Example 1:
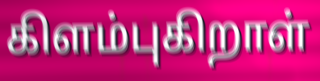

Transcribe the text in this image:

கிளம்புகிறாள்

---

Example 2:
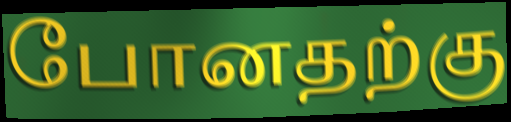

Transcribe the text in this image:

போனதற்கு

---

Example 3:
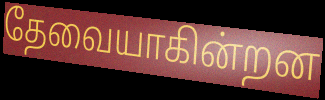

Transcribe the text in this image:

தேவையாகின்றன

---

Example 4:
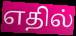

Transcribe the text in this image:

எதில்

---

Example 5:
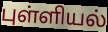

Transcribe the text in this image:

புள்ளியல்